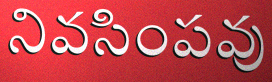
నివసింపవు